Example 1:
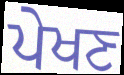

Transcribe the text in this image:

ਪੇਖਣ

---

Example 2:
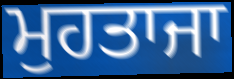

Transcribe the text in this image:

ਮੁਹਤਾਜਾ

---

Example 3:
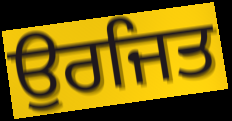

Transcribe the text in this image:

ਉਰਜਿਤ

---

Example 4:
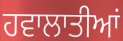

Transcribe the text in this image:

ਹਵਾਲਾਤੀਆਂ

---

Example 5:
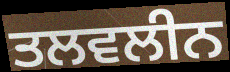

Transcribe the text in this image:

ਤਲਵਲੀਨ